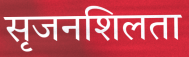
सृजनशिलता